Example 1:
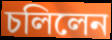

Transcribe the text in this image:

চলিলেন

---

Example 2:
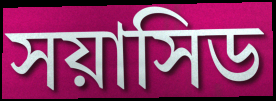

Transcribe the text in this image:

সয়াসিড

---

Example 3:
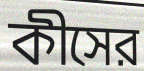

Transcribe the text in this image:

কীসের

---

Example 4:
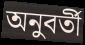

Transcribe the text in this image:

অনুবর্তী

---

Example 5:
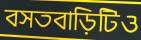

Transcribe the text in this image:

বসতবাড়িটিও